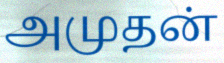
அமுதன்